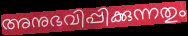
അനുഭവിപ്പിക്കുന്നതും